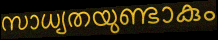
സാധ്യതയുണ്ടാകും